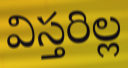
విస్తరిల్ల